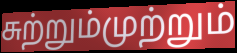
சுற்றும்முற்றும்